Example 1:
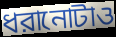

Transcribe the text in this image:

ধরানোটাও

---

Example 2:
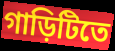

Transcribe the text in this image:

গাড়িটিতে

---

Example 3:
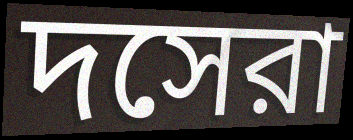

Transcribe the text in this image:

দসেরা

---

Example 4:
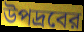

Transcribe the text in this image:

উপদ্রবের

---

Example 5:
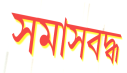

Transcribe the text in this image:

সমাসবদ্ধ